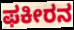
ಫಕೀರನ